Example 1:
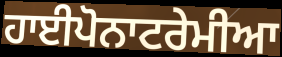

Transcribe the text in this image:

ਹਾਈਪੋਨਾਟਰੇਮੀਆ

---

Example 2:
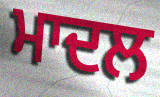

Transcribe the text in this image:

ਮਾਦਲ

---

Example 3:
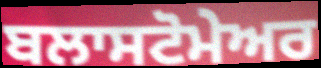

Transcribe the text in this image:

ਬਲਾਸਟੋਮੇਅਰ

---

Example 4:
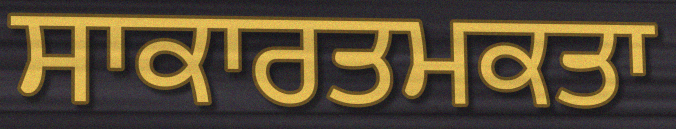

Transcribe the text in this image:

ਸਾਕਾਰਤਮਕਤਾ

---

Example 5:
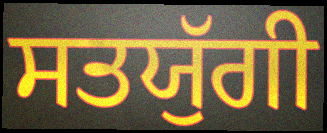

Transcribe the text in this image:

ਸਤਯੁੱਗੀ